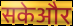
सकेऔर